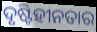
ଦୃଷ୍ଟିହୀନତାର